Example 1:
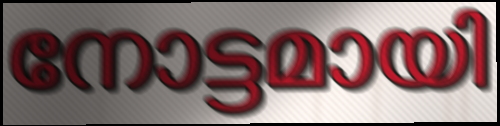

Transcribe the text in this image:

നോട്ടമായി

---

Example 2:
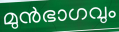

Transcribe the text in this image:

മുൻഭാഗവും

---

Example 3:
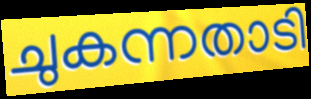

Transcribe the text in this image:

ചുകന്നതാടി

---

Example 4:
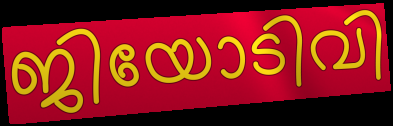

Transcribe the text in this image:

ജിയോടിവി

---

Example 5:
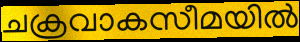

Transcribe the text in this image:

ചക്രവാകസീമയിൽ